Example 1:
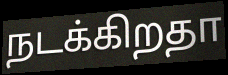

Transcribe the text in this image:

நடக்கிறதா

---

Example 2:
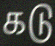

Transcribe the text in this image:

கடு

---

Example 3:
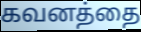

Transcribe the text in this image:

கவனத்தை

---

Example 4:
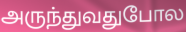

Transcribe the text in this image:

அருந்துவதுபோல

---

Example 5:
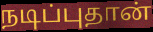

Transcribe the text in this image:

நடிப்புதான்